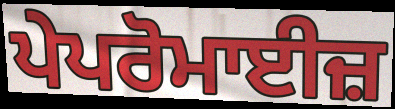
ਪੇਪਰੋਮਾਈਜ਼